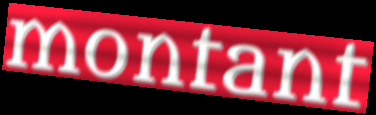
montant